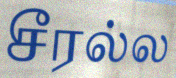
சீரல்ல